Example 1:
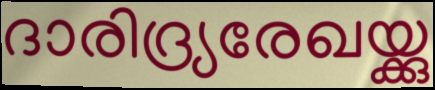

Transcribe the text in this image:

ദാരിദ്ര്യരേഖയ്ക്കു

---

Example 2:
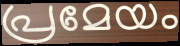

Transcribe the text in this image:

പ്രമേയം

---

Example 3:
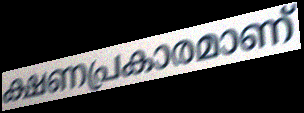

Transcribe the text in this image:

ക്ഷണപ്രകാരമാണ്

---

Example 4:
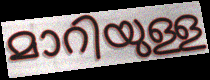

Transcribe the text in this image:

മാറിയുള്ള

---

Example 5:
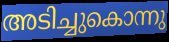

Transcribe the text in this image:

അടിച്ചുകൊന്നു